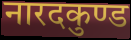
नारदकुण्ड